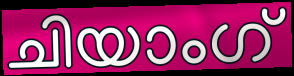
ചിയാംഗ്